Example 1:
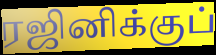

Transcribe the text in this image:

ரஜினிக்குப்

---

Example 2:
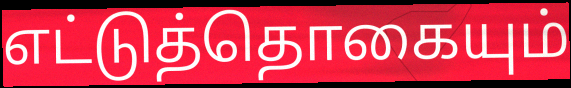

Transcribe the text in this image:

எட்டுத்தொகையும்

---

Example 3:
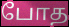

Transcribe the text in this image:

போத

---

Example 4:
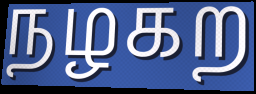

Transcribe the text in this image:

நழகற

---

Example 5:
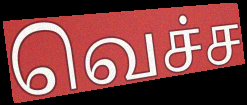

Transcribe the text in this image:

வெச்ச